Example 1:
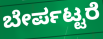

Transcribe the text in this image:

ಬೇರ್ಪಟ್ಟರೆ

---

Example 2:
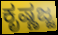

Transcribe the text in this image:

ಕೃಷ್ಣಜ್ಜ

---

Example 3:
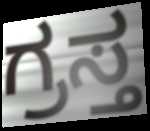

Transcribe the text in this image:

ಗ್ರಸ್ತ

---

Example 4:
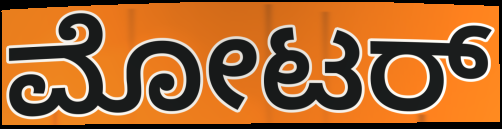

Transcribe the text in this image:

ಮೋಟರ್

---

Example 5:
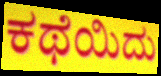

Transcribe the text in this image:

ಕಥೆಯಿದು